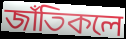
জাঁতিকলে